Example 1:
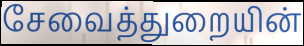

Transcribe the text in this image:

சேவைத்துறையின்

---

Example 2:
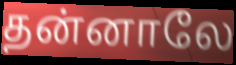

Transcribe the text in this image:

தன்னாலே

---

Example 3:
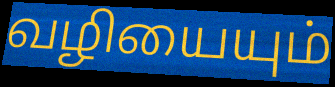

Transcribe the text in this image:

வழியையும்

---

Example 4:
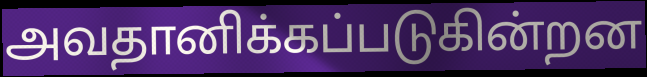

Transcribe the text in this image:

அவதானிக்கப்படுகின்றன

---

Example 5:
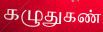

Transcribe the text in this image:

கழுதுகண்